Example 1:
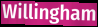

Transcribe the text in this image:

Willingham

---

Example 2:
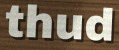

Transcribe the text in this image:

thud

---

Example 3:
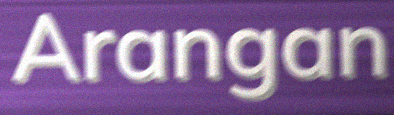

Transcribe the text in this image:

Arangan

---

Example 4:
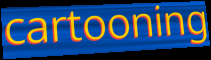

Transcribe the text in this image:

cartooning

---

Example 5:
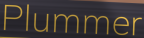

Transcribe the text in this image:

Plummer